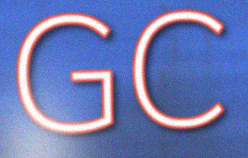
GC